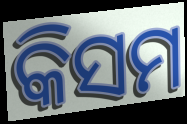
କିସମ